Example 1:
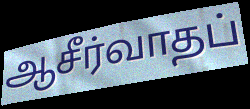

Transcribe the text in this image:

ஆசீர்வாதப்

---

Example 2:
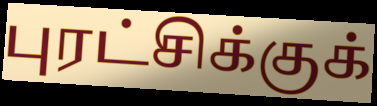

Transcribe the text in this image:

புரட்சிக்குக்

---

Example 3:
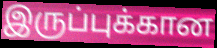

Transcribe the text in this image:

இருப்புக்கான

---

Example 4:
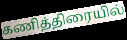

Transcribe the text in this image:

கணித்திரையில்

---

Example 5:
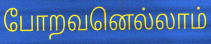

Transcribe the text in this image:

போறவனெல்லாம்